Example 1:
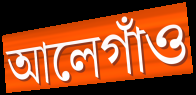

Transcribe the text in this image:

আলেগাঁও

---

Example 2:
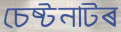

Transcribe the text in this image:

চেষ্টনাটৰ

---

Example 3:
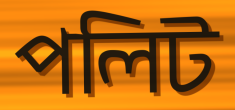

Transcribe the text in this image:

পলিট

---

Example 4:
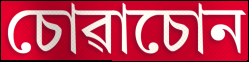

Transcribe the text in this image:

চোৱাচোন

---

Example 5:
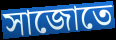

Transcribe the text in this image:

সাজোতে